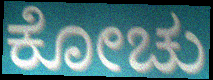
ಕೋಚು